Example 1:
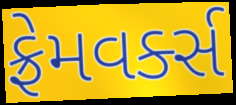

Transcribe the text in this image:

ફ્રેમવર્ક્સ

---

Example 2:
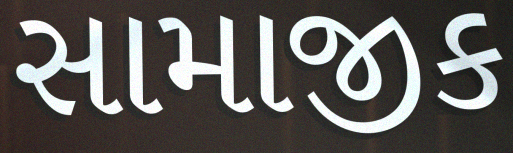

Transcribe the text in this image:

સામાજીક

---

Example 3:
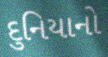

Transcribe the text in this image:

દુનિયાનો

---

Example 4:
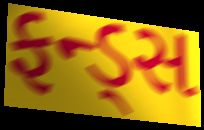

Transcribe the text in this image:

ફન્ડ્સ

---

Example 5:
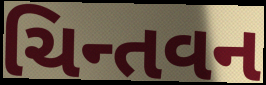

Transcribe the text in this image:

ચિન્તવન